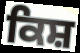
ਕਿਸ਼